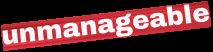
unmanageable